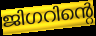
ജിഗറിന്റെ